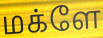
மக்ளே